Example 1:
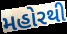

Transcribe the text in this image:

મહોરથી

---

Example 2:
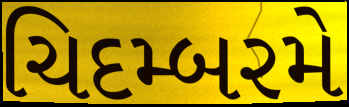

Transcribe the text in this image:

ચિદમ્બરમે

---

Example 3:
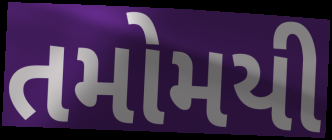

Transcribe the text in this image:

તમોમયી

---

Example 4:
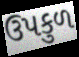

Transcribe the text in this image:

ઉપકુળ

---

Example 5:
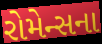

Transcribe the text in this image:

રોમેન્સના